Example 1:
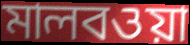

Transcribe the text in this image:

মালবওয়া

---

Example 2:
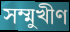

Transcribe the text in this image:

সম্মুখীণ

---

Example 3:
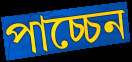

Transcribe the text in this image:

পাচ্চেন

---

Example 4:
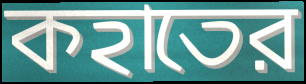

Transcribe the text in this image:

কহাতের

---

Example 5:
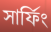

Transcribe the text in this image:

সার্ফিং